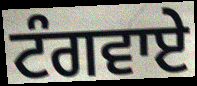
ਟੰਗਵਾਏ